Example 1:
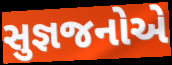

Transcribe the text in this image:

સુજ્ઞજનોએ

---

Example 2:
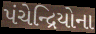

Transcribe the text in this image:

પંચેન્દ્રિયોના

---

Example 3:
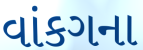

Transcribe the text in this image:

વાંકગના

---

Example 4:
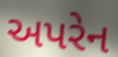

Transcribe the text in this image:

અપરેન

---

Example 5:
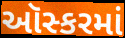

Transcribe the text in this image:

ઑસ્કરમાં